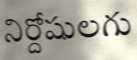
నిర్దోషులగు